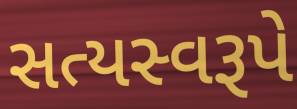
સત્યસ્વરૂપે